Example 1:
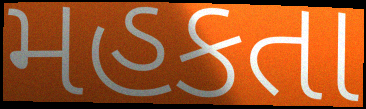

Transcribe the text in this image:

મહકતા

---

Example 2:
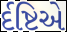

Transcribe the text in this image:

ર્દષ્ટિએ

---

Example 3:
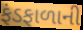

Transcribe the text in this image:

ફંડફાળાની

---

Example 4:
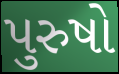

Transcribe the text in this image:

પુરુષો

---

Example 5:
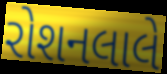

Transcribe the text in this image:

રોશનલાલે